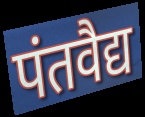
पंतवैद्य